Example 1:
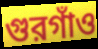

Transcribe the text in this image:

গুরগাঁও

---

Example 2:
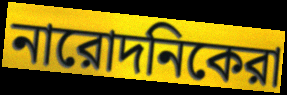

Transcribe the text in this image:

নারোদনিকেরা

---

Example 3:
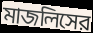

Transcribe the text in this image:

মাজলিসের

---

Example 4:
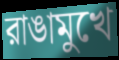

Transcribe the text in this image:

রাঙামুখে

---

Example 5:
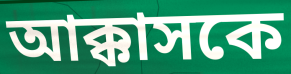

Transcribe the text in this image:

আক্কাসকে